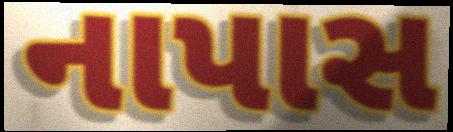
નાપાસ